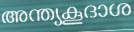
അന്ത്യകൂദാശ